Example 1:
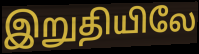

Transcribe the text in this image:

இறுதியிலே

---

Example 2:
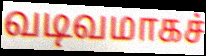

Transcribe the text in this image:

வடிவமாகச்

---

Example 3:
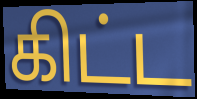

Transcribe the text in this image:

கிட்ட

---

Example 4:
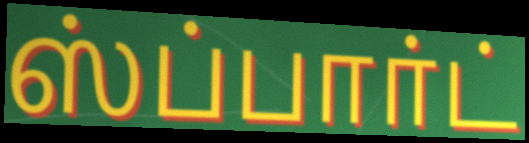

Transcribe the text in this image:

ஸ்ப்பார்ட்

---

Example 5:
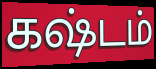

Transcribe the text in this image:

கஷ்டம்